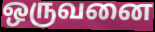
ஒருவனை